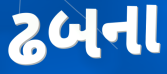
ઢબના